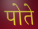
पोते